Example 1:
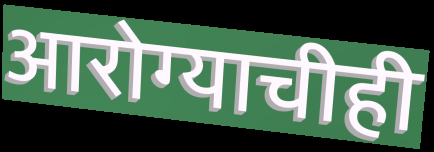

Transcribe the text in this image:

आरोग्याचीही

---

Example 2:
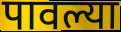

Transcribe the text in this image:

पावल्या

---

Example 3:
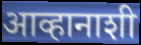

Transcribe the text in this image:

आव्हानाशी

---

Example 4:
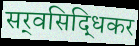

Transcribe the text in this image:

सर्वसिद्धिकर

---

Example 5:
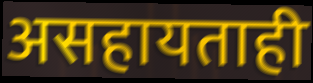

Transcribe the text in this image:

असहायताही